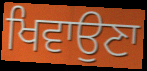
ਖਿਵਾਉਣਾ